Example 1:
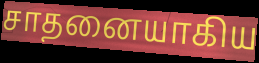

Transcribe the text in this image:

சாதனையாகிய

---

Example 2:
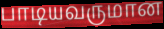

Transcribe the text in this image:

பாடியவருமான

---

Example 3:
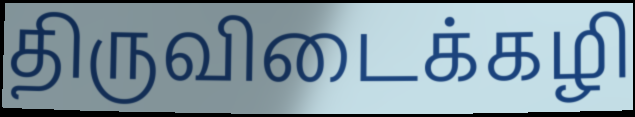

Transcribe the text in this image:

திருவிடைக்கழி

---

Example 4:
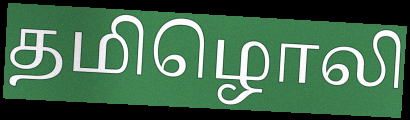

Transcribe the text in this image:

தமிழொலி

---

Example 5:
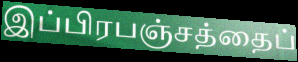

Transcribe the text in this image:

இப்பிரபஞ்சத்தைப்